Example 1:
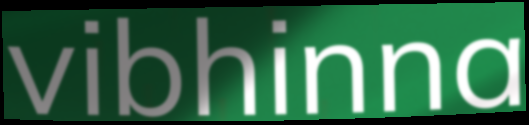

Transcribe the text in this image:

vibhinna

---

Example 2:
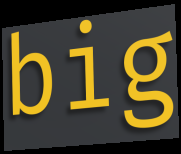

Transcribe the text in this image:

big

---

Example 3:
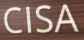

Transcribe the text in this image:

CISA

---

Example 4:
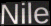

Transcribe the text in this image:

Nile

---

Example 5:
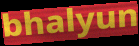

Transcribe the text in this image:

bhalyun